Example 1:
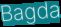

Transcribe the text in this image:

Bagda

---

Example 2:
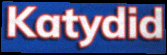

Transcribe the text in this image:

Katydid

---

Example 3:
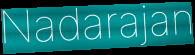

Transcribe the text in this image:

Nadarajan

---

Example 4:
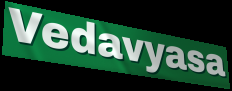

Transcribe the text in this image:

Vedavyasa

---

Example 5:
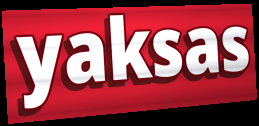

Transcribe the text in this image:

yaksas